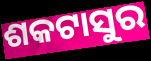
ଶକଟାସୁର